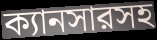
ক্যানসারসহ